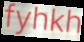
fyhkh